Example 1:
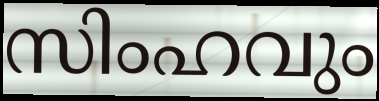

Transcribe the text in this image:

സിംഹവും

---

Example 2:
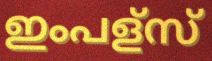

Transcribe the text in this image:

ഇംപള്സ്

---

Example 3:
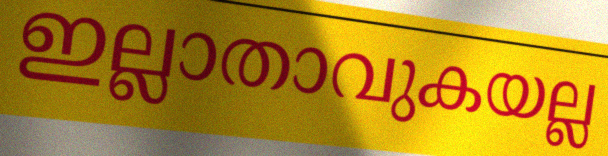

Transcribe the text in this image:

ഇല്ലാതാവുകയല്ല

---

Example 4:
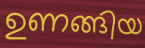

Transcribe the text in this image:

ഉണങ്ങിയ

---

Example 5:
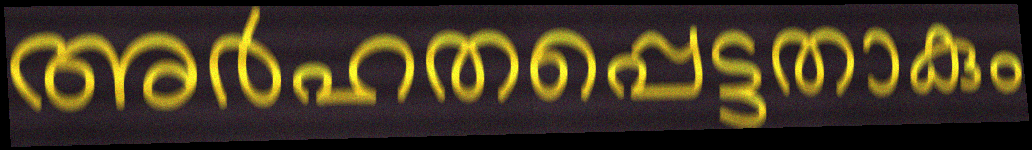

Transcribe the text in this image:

അർഹതപ്പെട്ടതാകും